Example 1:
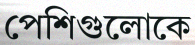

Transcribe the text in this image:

পেশিগুলোকে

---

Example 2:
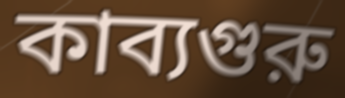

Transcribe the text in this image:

কাব্যগুরু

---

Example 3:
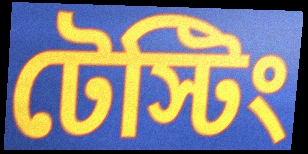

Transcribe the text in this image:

টেস্টিং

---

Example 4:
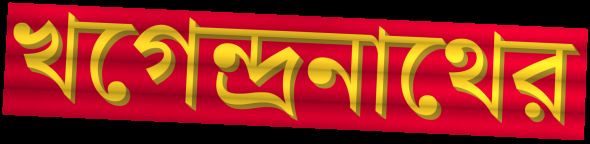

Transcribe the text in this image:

খগেন্দ্রনাথের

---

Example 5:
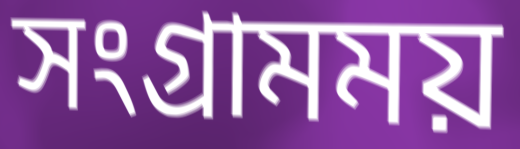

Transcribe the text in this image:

সংগ্রামময়